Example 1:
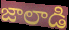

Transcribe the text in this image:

జాలాడి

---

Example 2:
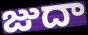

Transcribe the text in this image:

జుదా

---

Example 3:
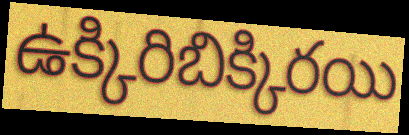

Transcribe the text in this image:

ఉక్కిరిబిక్కిరయి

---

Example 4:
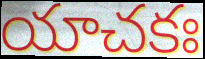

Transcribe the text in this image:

యాచకః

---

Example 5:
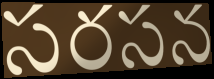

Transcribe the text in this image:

సరసన